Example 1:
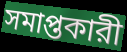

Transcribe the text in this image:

সমাপ্তকারী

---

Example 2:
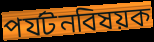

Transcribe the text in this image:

পর্যটনবিষয়ক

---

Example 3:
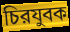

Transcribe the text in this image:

চিরযুবক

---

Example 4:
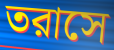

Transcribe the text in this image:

তরাসে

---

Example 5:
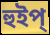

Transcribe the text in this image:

হুইপ্